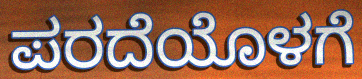
ಪರದೆಯೊಳಗೆ